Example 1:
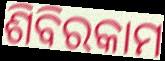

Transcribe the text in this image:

ଶିବିରକାମ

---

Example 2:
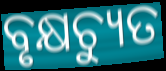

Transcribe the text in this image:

ବୃକ୍ଷଚ୍ଯୁତ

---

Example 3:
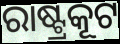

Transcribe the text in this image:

ରାଷ୍ଟ୍ରକୂଟ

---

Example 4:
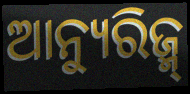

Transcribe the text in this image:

ଆନ୍ୟୁରିଜ୍ମ୍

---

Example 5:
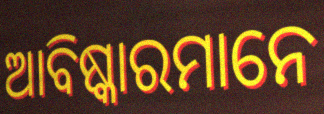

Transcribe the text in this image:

ଆବିଷ୍କାରମାନେ